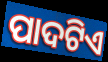
ପାଦଟିଏ